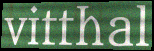
vitthal